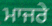
ਮਾਜਰੇ